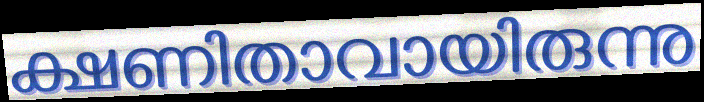
ക്ഷണിതാവായിരുന്നു